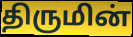
திருமின்